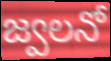
జ్వలనో